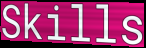
Skills